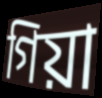
গিয়া